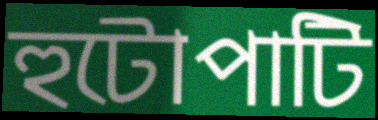
হুটোপাটি